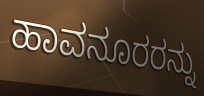
ಹಾವನೂರರನ್ನು